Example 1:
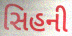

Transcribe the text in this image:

સિહની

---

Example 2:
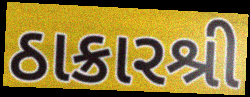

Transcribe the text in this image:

ઠાક્રારશ્રી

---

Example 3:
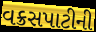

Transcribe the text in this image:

વક્રસપાટીની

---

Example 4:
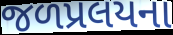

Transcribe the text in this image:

જળપ્રલયના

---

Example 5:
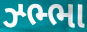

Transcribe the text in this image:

ઝ્ભ્ભા